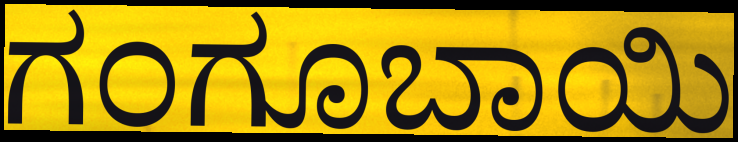
ಗಂಗೂಬಾಯಿ